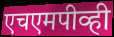
एचएमपीव्ही